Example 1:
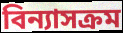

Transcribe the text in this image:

বিন্যাসক্রম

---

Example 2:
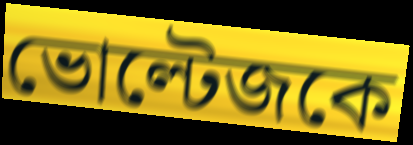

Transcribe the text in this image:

ভোল্টেজকে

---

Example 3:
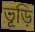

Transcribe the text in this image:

ভূড়ি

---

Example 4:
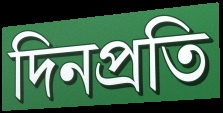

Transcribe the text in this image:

দিনপ্রতি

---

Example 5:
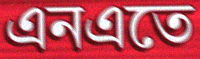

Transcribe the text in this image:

এনএতে